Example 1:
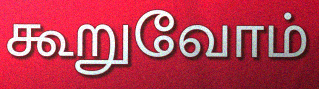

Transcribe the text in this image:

கூறுவோம்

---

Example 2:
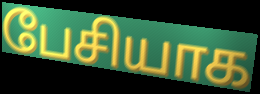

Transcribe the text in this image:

பேசியாக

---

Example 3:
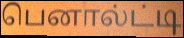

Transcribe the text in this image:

பெனால்ட்டி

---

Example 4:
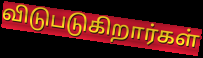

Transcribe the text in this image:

விடுபடுகிறார்கள்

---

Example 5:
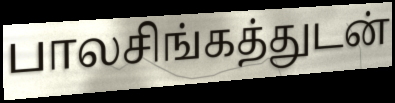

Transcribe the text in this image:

பாலசிங்கத்துடன்